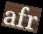
afr